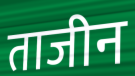
ताजीन